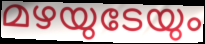
മഴയുടേയും